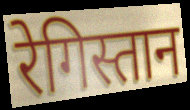
रेगिस्तान